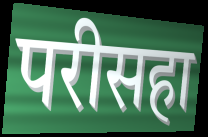
परीसहा